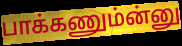
பாக்கணும்ன்னு